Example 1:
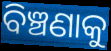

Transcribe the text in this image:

ବିଞ୍ଚଣାକୁ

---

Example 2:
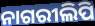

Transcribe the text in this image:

ନାଗରୀଲିପି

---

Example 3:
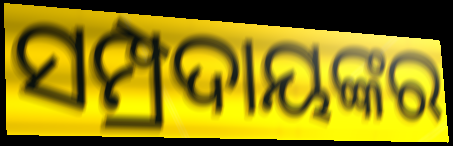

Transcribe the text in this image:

ସମ୍ପ୍ରଦାୟଙ୍କର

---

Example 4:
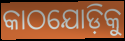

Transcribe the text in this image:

କାଠଯୋଡ଼ିକୁ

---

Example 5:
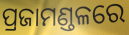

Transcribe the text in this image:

ପ୍ରଜାମଣ୍ଡଳରେ